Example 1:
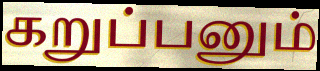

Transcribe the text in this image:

கறுப்பனும்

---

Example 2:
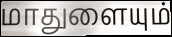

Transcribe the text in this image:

மாதுளையும்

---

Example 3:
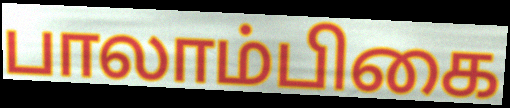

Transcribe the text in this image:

பாலாம்பிகை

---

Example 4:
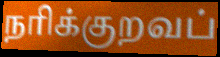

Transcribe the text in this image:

நரிக்குறவப்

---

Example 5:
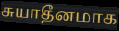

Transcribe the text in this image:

சுயாதீனமாக